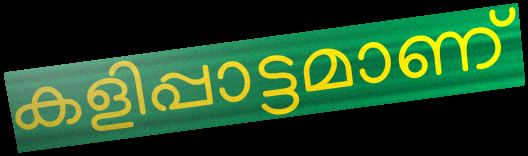
കളിപ്പാട്ടമാണ്